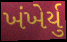
ખંખેર્યુ